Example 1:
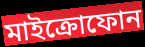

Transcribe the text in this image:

মাইক্রোফোন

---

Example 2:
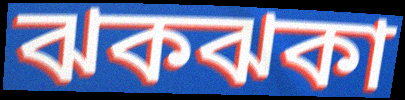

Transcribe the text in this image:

ঝকঝকা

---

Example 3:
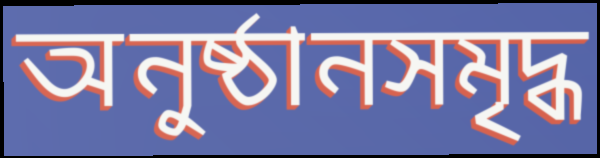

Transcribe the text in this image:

অনুষ্ঠানসমৃদ্ধ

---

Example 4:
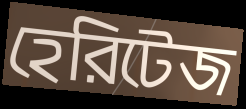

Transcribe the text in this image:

হেরিটেজ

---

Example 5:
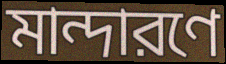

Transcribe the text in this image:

মান্দারণে